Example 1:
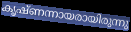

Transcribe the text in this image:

കൃഷ്ണന്നായരായിരുന്നു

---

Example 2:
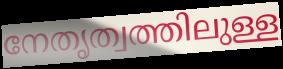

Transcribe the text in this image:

നേതൃത്വത്തിലുള്ള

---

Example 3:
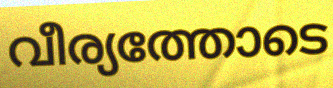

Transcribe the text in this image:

വീര്യത്തോടെ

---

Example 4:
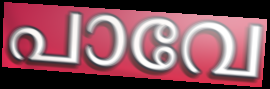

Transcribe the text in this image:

പാവേ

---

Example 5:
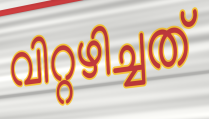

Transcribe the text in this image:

വിറ്റഴിച്ചത്